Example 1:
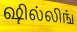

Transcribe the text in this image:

ஷில்லிங்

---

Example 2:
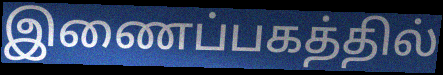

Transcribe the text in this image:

இணைப்பகத்தில்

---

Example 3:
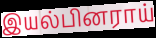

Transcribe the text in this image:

இயல்பினராய்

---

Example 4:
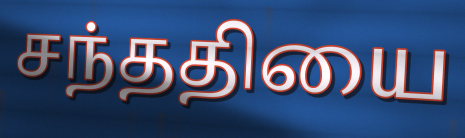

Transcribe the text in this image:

சந்ததியை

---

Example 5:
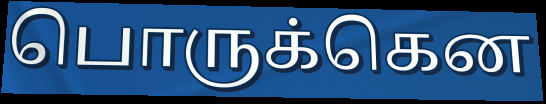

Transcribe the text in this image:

பொருக்கென